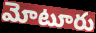
మోటూరు